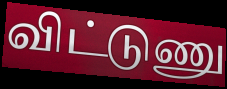
விட்டுணு